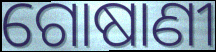
ଗୋଷାଣୀ